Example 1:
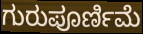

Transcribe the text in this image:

ಗುರುಪೂರ್ಣಿಮೆ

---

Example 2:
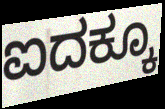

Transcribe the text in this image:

ಐದಕ್ಕೂ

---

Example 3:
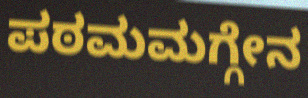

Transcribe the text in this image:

ಪಠಮಮಗ್ಗೇನ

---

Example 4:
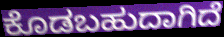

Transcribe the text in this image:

ಕೊಡಬಹುದಾಗಿದೆ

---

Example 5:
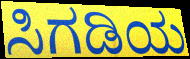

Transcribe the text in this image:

ಸಿಗಡಿಯ